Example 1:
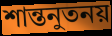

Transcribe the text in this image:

শান্তনুতনয়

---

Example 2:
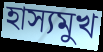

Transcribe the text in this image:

হাস্যমুখ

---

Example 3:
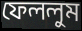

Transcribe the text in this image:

ফেললুম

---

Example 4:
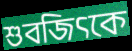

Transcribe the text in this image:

শুবজিৎকে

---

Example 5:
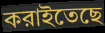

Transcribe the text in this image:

করাইতেছে